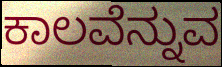
ಕಾಲವೆನ್ನುವ